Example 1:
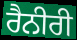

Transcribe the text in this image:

ਰੈਨੀਰੀ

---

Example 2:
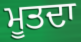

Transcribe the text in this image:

ਮੂਤਦਾ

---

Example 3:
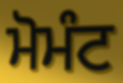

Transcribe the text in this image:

ਮੋਮੰਟ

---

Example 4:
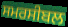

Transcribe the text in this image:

ਸਮਰਸੀਬਲ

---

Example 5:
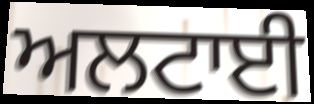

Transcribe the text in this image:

ਅਲਟਾਈ